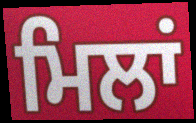
ਮਿਲਾਂ